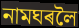
নামঘৰলৈ